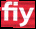
fiy